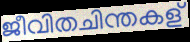
ജീവിതചിന്തകള്